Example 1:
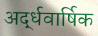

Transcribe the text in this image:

अर्द्धवार्षिक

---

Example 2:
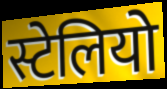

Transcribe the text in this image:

स्टेलियो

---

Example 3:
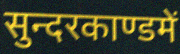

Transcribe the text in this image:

सुन्दरकाण्डमें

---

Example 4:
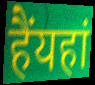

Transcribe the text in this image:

हैंयहां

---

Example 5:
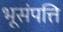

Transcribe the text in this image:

भूसंपत्ति